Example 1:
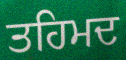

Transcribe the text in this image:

ਤਹਿਮਦ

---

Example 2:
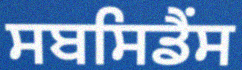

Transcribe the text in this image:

ਸਬਸਿਡੈਂਸ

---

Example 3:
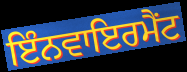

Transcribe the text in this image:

ਇੰਨਵਾਇਰਮੈਂਟ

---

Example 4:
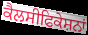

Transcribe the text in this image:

ਕੈਲਸੀਫਿਕੇਸ਼ਨਾਂ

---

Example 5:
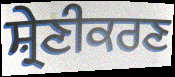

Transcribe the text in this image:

ਸ਼੍ਰੇਣੀਕਰਣ